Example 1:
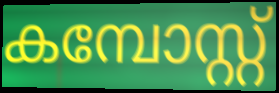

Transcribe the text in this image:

കമ്പോസ്റ്റ്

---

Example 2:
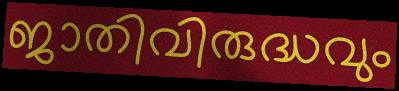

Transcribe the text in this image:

ജാതിവിരുദ്ധവും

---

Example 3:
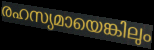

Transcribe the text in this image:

രഹസ്യമായെങ്കിലും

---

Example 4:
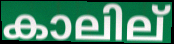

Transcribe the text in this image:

കാലില്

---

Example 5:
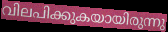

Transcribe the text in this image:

വിലപിക്കുകയായിരുന്നു